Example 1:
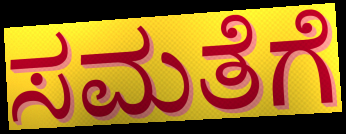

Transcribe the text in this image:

ಸಮತೆಗೆ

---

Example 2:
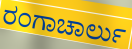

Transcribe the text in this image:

ರಂಗಾಚಾರ್ಲು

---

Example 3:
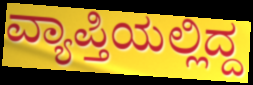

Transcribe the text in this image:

ವ್ಯಾಪ್ತಿಯಲ್ಲಿದ್ದ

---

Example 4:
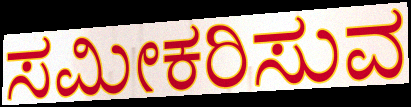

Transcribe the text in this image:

ಸಮೀಕರಿಸುವ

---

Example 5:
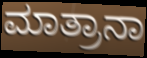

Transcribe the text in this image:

ಮಾತ್ರಾನಾ